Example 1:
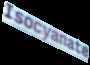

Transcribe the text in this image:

Isocyanate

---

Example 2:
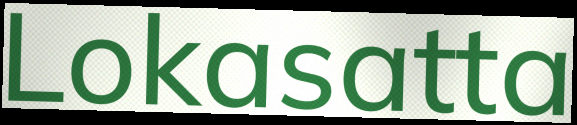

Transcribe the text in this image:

Lokasatta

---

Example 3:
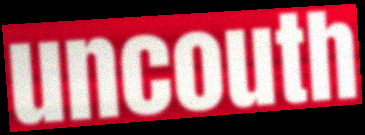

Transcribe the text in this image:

uncouth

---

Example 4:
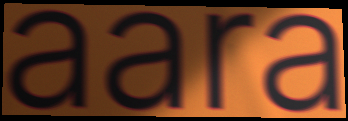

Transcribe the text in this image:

aara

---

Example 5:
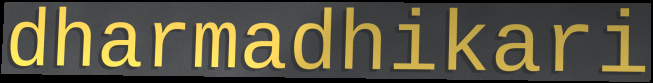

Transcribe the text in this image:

dharmadhikari